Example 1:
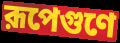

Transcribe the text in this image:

রূপেগুণে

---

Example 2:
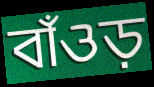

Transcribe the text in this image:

বাঁওড়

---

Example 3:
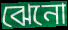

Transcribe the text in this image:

ঝেনো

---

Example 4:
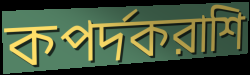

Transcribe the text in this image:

কপর্দকরাশি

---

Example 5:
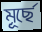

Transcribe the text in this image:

মূর্ছে